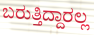
ಬರುತ್ತಿದ್ದಾರಲ್ಲ